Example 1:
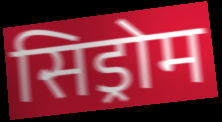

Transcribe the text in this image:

सिड्रोम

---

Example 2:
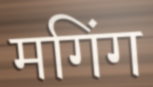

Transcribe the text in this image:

मगिंग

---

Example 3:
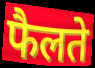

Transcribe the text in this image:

फैलते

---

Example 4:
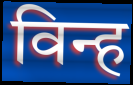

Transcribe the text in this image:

विन्ह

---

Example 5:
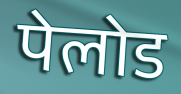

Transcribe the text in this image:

पेलोड